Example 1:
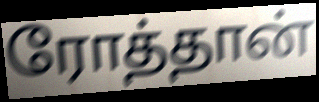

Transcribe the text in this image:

ரோத்தான்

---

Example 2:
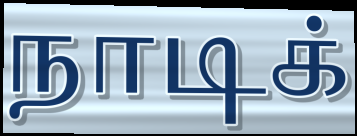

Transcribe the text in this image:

நாடிக்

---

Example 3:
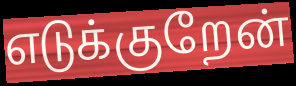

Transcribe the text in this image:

எடுக்குறேன்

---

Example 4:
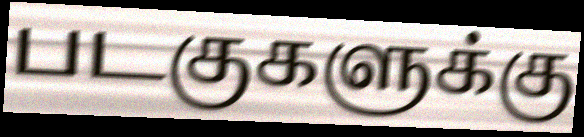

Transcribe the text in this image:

படகுகளுக்கு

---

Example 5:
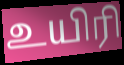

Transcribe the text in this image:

உயிரி